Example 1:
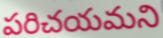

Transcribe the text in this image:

పరిచయమని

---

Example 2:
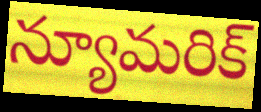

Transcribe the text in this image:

న్యూమరిక్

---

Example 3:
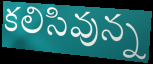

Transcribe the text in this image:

కలిసివున్న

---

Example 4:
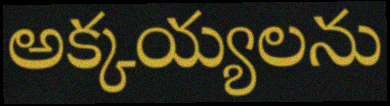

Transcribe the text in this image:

అక్కయ్యలను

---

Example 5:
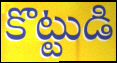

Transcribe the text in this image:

కొట్టుడి